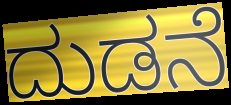
ದುಡನೆ